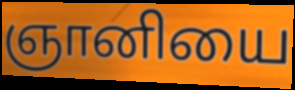
ஞானியை